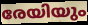
രേയിയും